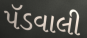
પૅડવાલી